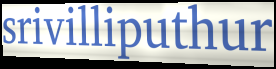
srivilliputhur